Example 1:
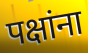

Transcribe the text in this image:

पक्षांना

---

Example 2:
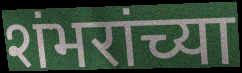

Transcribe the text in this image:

शंभरांच्या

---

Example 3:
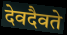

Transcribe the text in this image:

देवदैवते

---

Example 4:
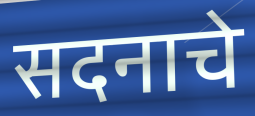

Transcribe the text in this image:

सदनाचे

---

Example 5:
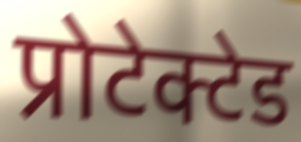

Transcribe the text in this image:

प्रोटेक्टेड